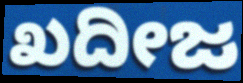
ಖದೀಜ